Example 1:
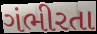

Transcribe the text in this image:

ગંભીરતા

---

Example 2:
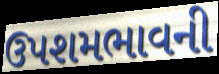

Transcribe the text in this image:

ઉપશમભાવની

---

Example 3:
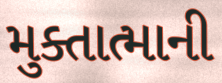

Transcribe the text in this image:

મુક્તાત્માની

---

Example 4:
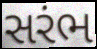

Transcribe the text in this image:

સરંભ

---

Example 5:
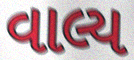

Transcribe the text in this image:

વાલ્ય